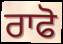
ਰਾਫੋ